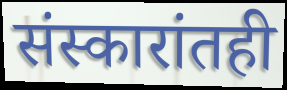
संस्कारांतही